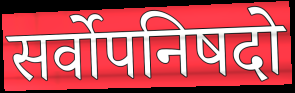
सर्वोपनिषदो